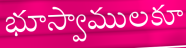
భూస్వాములకూ